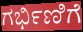
ಗರ್ಭಿಣಿಗೆ